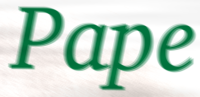
Pape